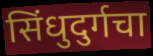
सिंधुदुर्गचा